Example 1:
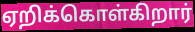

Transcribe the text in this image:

ஏறிக்கொள்கிறார்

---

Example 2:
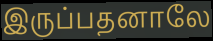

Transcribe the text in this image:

இருப்பதனாலே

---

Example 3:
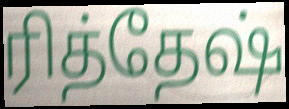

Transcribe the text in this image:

ரித்தேஷ்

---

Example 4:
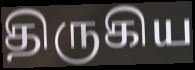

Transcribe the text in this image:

திருகிய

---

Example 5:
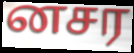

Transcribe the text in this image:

னசர